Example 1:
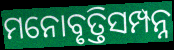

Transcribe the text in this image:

ମନୋବୃତ୍ତିସମ୍ପନ୍ନ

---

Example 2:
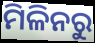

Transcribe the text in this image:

ମିଳିନରୁ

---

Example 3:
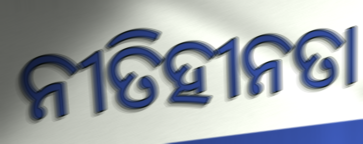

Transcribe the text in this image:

ନୀତିହୀନତା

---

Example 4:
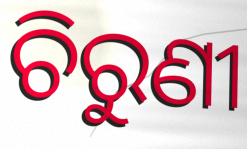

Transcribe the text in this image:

ଚିରୁଣୀ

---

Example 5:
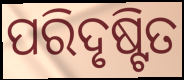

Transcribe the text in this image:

ପରିଦୃଷ୍ଟିତ